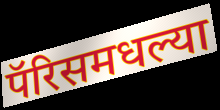
पॅरिसमधल्या